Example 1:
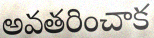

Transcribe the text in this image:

అవతరించాక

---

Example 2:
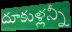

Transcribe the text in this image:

దూకుళ్లన్నీ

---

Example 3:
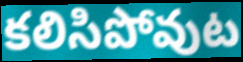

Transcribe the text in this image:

కలిసిపోవుట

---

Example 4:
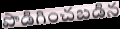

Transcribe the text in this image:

పొడిగించబడిన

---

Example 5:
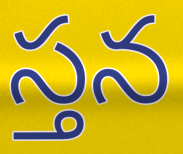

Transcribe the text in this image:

స్తన